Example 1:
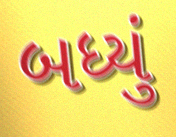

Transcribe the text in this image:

બધ્યું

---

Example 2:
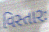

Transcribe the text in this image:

વિસ્તારઃ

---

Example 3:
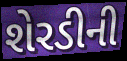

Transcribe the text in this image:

શેરડીની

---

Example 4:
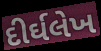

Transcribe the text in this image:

દીર્ઘલેખ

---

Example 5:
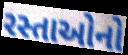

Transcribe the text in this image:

રસ્તાઓનો